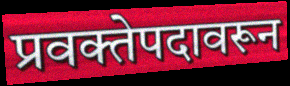
प्रवक्तेपदावरून